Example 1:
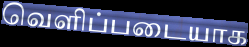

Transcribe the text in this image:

வெளிப்படையாக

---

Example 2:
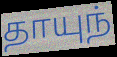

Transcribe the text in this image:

தாயுந்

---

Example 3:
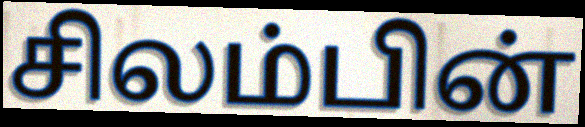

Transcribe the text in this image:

சிலம்பின்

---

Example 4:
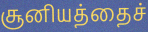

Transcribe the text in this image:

சூனியத்தைச்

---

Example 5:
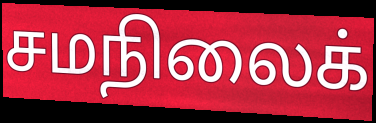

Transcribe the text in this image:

சமநிலைக்